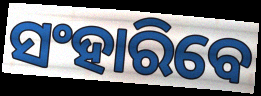
ସଂହାରିବେ